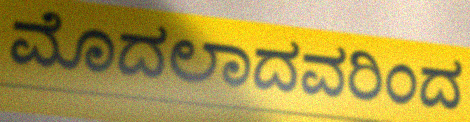
ಮೊದಲಾದವರಿಂದ